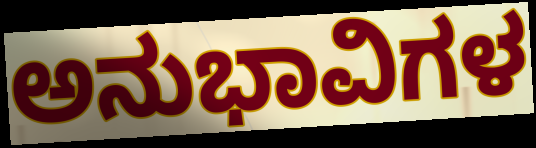
ಅನುಭಾವಿಗಳ